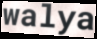
walya